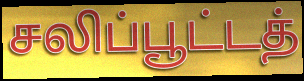
சலிப்பூட்டத்